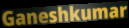
Ganeshkumar